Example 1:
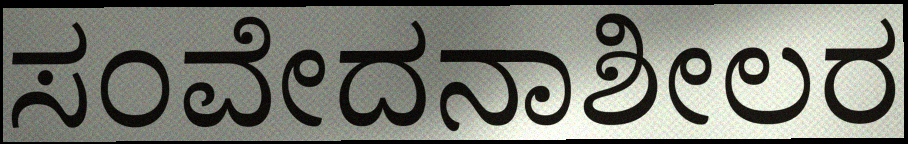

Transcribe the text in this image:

ಸಂವೇದನಾಶೀಲರ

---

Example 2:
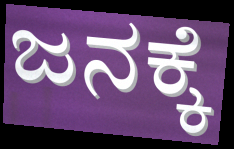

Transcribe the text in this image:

ಜನಕ್ಕೆ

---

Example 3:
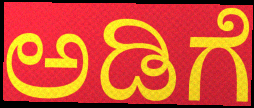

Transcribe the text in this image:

ಅಡಿಗೆ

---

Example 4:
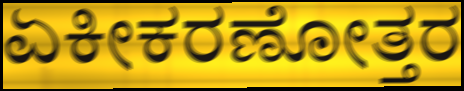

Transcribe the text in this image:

ಏಕೀಕರಣೋತ್ತರ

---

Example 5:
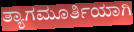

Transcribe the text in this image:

ತ್ಯಾಗಮೂರ್ತಿಯಾಗಿ